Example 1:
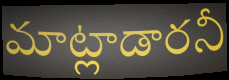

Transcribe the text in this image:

మాట్లాడారనీ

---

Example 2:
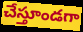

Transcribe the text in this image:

చేస్తూండగా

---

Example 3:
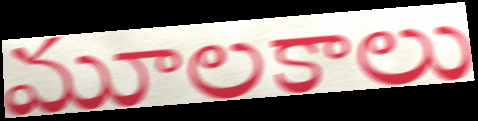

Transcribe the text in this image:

మూలకాలు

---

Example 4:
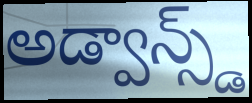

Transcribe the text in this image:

అడ్వాన్స్డ్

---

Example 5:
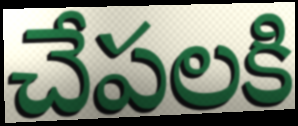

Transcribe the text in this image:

చేపలకి